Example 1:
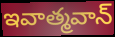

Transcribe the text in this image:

ఇవాత్మవాన్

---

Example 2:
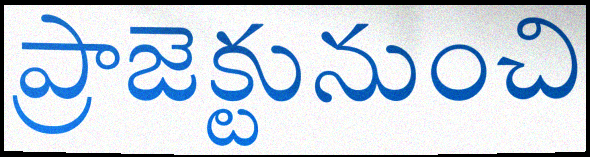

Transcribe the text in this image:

ప్రాజెక్టునుంచి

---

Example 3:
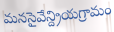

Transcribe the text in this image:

మనసైవేన్ద్రియగ్రామం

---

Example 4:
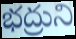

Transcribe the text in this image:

భద్రుని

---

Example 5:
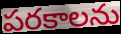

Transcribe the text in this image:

పరకాలను